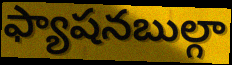
ఫ్యాషనబుల్గా